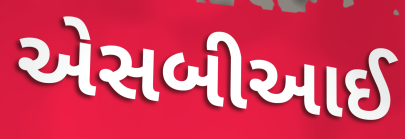
એસબીઆઈ